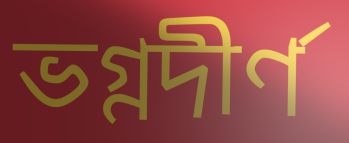
ভগ্নদীর্ণ